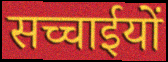
सच्चाईयों